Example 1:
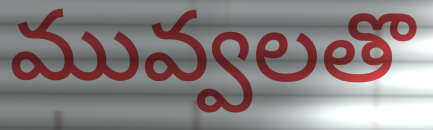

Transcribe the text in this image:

మువ్వలతొ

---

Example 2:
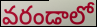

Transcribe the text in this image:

వరండాలో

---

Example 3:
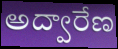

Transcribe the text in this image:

అద్వారేణ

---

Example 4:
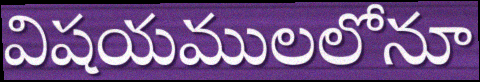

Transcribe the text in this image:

విషయములలోనూ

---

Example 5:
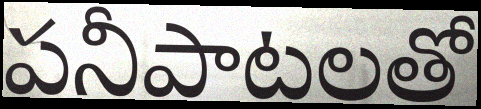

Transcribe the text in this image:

పనీపాటలతో